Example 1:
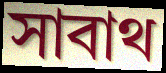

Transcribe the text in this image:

সাবাথ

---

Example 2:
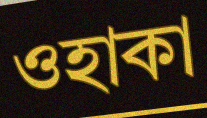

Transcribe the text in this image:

ওহাকা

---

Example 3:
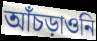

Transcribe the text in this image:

আঁচড়াওনি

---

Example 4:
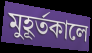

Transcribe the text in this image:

মুহূর্তকালে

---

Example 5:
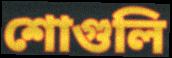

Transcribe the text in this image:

শোগুলি